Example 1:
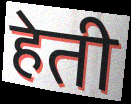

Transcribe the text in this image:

हेती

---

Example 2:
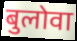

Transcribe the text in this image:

बुलोवा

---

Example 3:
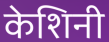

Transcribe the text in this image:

केशिनी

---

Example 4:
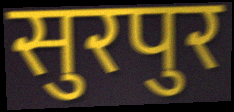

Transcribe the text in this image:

सुरपुर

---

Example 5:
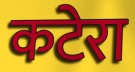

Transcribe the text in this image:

कटेरा